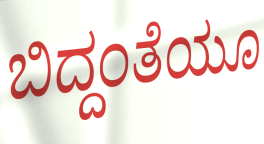
ಬಿದ್ದಂತೆಯೂ